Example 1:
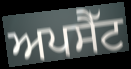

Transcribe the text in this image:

ਅਪਸੈੱਟ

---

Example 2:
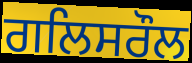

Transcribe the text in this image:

ਗਲਿਸਰੌਲ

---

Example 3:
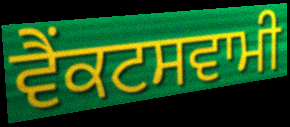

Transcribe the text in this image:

ਵੈਂਕਟਸਵਾਮੀ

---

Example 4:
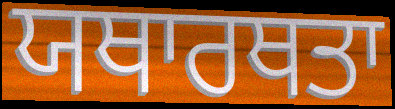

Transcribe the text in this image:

ਯਥਾਰਥਤਾ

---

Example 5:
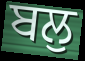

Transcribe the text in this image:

ਬਲੁ